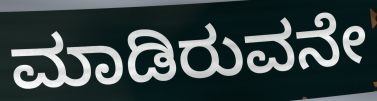
ಮಾಡಿರುವನೇ